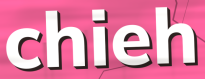
chieh